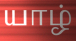
யாழ்